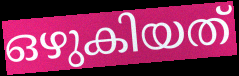
ഒഴുകിയത്